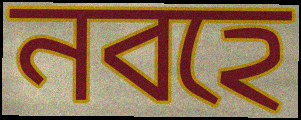
নবহে